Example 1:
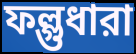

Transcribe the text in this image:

ফল্গুধারা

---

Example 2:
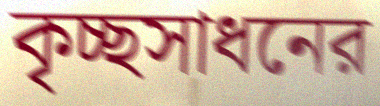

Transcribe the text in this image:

কৃচ্ছসাধনের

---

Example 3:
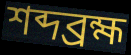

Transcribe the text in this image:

শব্দব্রহ্ম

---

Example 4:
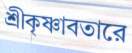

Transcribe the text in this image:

শ্রীকৃষ্ণাবতারে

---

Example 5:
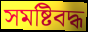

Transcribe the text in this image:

সমষ্টিবদ্ধ